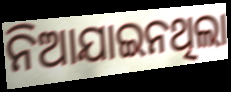
ନିଆଯାଇନଥିଲା